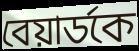
বেয়ার্ডকে